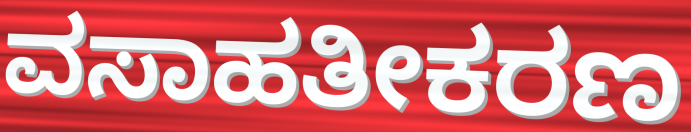
ವಸಾಹತೀಕರಣ